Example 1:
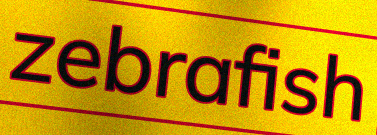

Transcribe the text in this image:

zebrafish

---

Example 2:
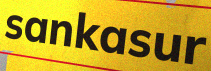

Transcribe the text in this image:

sankasur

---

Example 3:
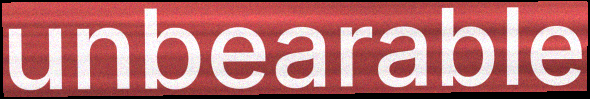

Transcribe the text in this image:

unbearable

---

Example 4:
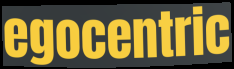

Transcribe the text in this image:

egocentric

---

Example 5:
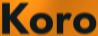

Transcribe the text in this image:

Koro